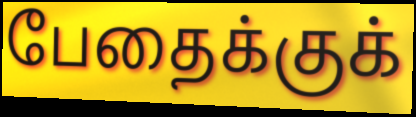
பேதைக்குக்